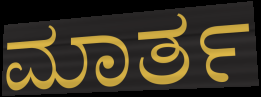
ಮಾರ್ತ